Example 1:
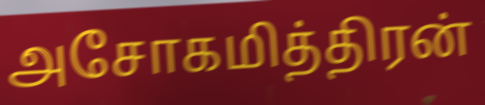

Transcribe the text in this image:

அசோகமித்திரன்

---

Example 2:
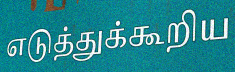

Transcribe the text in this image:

எடுத்துக்கூறிய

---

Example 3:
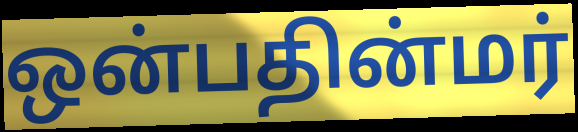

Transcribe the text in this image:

ஒன்பதின்மர்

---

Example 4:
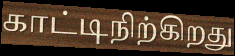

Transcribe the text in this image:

காட்டிநிற்கிறது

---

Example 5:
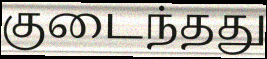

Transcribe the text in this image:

குடைந்தது